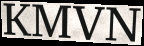
KMVN